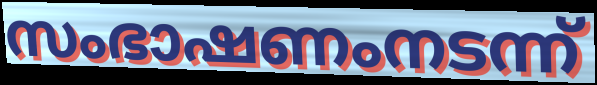
സംഭാഷണംനടന്ന്